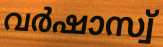
വർഷാസ്വ്